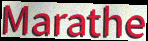
Marathe